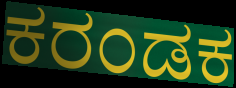
ಕರಂಡಕ